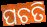
ପଚତି